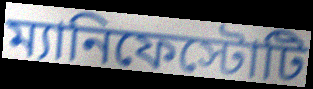
ম্যানিফেস্টোটি